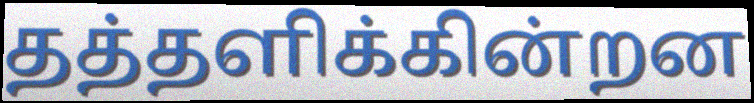
தத்தளிக்கின்றன